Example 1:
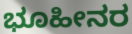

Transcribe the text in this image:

ಭೂಹೀನರ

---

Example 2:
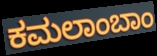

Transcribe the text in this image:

ಕಮಲಾಂಬಾಂ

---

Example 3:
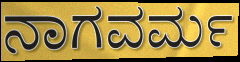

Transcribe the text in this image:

ನಾಗವರ್ಮ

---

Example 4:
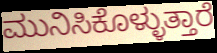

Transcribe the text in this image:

ಮುನಿಸಿಕೊಳ್ಳುತ್ತಾರೆ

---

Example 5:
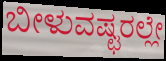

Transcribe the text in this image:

ಬೀಳುವಷ್ಟರಲ್ಲೇ